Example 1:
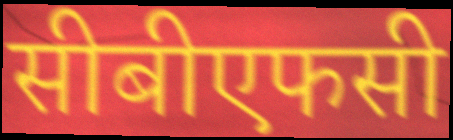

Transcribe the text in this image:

सीबीएफसी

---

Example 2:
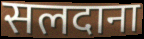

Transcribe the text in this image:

सलदाना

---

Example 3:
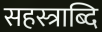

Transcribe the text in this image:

सहस्त्राब्दि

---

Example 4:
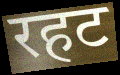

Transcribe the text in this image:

रहट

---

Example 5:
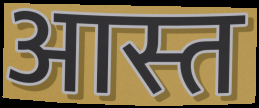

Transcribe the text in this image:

आस्त